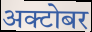
अक्टोबर